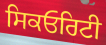
ਸਿਕਓਰਿਟੀ